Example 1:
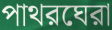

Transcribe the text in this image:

পাথরঘেরা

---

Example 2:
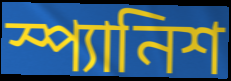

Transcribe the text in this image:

স্প্যানিশ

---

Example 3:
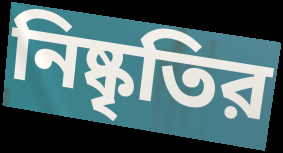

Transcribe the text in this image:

নিষ্কৃতির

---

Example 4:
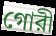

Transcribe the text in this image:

গোরী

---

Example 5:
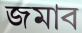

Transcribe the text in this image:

জমাব